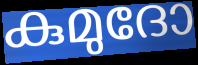
കുമുദോ